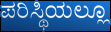
ಪರಿಸ್ಥಿಯಲ್ಲೂ